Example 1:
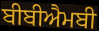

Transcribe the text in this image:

ਬੀਬੀਐਮਬੀ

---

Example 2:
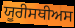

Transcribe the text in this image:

ਯੂਰੀਸਥੀਅਸ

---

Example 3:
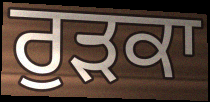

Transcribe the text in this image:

ਰੁੜਕਾ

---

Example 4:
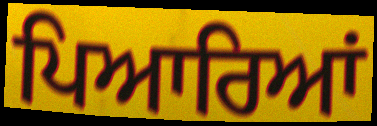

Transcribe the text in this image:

ਪਿਆਰਿਆਂ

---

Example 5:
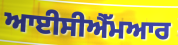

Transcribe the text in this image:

ਆਈਸੀਐੱਮਆਰ